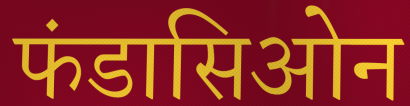
फंडासिओन